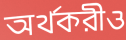
অর্থকরীও